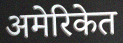
अमेरिकेत